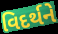
વિદર્થને